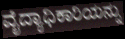
ವೈದ್ಯಾಧಿಕಾರಿಯನ್ನು